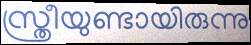
സ്ത്രീയുണ്ടായിരുന്നു